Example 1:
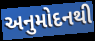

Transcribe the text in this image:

અનુમોદનથી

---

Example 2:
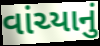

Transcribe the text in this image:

વાંચ્યાનું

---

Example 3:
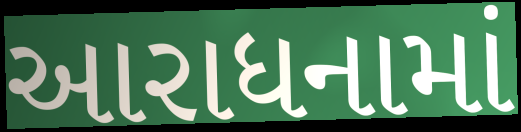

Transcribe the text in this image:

આરાધનામાં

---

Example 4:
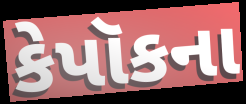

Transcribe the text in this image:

કેપૉકના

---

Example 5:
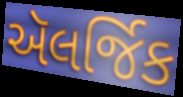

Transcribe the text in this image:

ઍલર્જિક